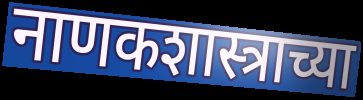
नाणकशास्त्राच्या